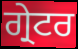
ਗ੍ਰੇਟਰ